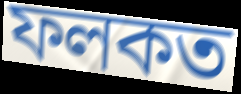
ফলকত